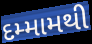
દમ્મામથી